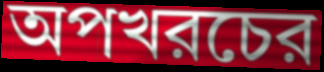
অপখরচের